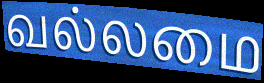
வல்லமை